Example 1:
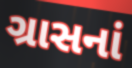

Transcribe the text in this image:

ગ્રાસનાં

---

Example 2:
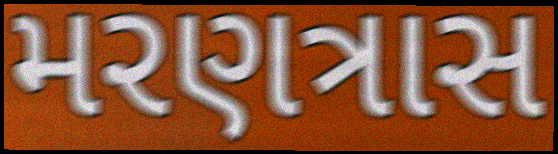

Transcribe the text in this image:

મરણત્રાસ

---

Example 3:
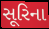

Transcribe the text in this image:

સૂરિના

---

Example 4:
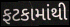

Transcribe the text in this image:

ફટકામાંથી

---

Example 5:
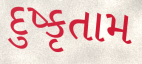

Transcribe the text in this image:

દુષ્કૃતામ